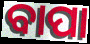
ବାପା